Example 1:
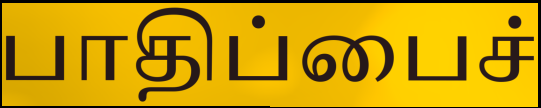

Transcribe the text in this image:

பாதிப்பைச்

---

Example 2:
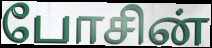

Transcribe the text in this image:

போசின்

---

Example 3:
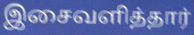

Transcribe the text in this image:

இசைவளித்தார்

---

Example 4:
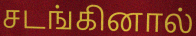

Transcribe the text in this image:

சடங்கினால்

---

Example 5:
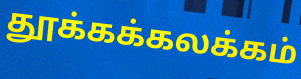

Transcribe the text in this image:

தூக்கக்கலக்கம்